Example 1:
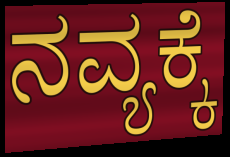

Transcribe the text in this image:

ನವ್ಯಕ್ಕೆ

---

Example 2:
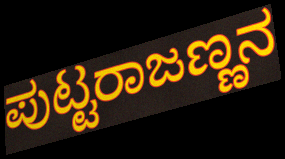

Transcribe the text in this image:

ಪುಟ್ಟರಾಜಣ್ಣನ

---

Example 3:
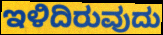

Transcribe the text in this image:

ಇಳಿದಿರುವುದು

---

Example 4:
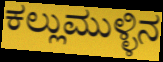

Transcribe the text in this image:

ಕಲ್ಲುಮುಳ್ಳಿನ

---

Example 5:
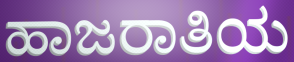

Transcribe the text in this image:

ಹಾಜರಾತಿಯ